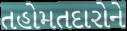
તહોમતદારોને